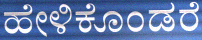
ಹೇಳಿಕೊಂಡರೆ